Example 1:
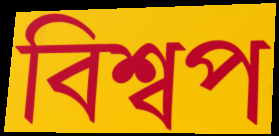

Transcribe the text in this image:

বিশ্বপ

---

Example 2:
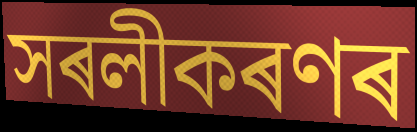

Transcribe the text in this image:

সৰলীকৰণৰ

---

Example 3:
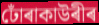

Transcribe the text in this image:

ঢোঁৰাকাউৰীৰ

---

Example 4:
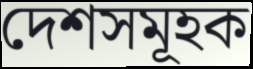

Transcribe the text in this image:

দেশসমূহক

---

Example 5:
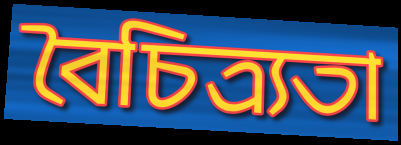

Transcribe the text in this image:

বৈচিত্ৰ্যতা